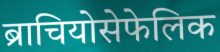
ब्राचियोसेफेलिक